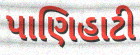
પાણિહાટી